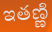
ఇతణ్ణి